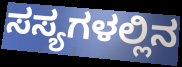
ಸಸ್ಯಗಳಲ್ಲಿನ